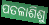
ପତଳାଶିଶୁ